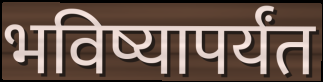
भविष्यापर्यंत